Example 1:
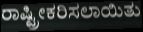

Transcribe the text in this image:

ರಾಷ್ಟ್ರೀಕರಿಸಲಾಯಿತು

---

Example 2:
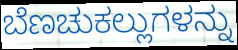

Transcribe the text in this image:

ಬೆಣಚುಕಲ್ಲುಗಳನ್ನು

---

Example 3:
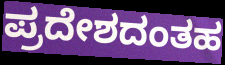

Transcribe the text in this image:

ಪ್ರದೇಶದಂತಹ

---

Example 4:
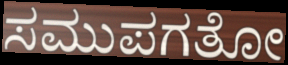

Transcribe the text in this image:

ಸಮುಪಗತೋ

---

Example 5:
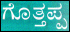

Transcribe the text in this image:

ಗೊತ್ತಪ್ಪ